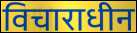
विचाराधीन